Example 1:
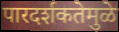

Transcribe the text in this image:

पारदर्शकतेमुळे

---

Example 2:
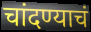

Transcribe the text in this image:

चांदण्याचं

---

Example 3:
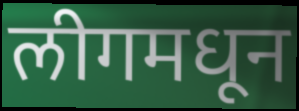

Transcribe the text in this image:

लीगमधून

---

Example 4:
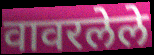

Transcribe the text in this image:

वावरलेले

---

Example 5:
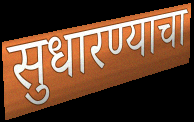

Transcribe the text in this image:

सुधारण्याचा